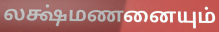
லக்ஷ்மணனையும்